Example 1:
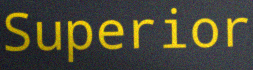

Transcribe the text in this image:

Superior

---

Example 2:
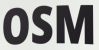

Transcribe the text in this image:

OSM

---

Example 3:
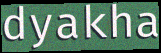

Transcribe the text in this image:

dyakha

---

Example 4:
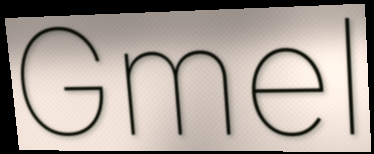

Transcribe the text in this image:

Gmel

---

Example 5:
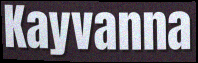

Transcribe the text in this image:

Kayvanna